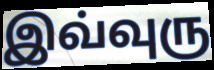
இவ்வுரு